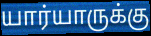
யார்யாருக்கு